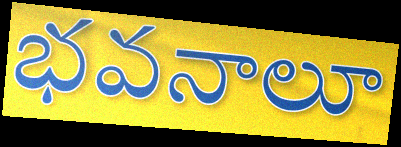
భవనాలూ